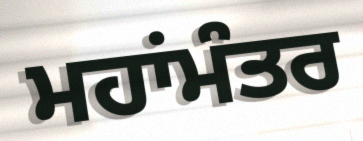
ਮਹਾਂਮੰਤਰ